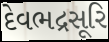
દેવભદ્રસૂરિ